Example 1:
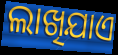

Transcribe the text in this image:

ଲାଖିଯାଏ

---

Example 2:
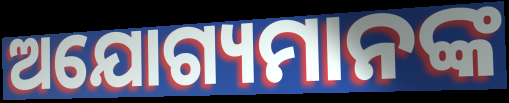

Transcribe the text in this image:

ଅଯୋଗ୍ୟମାନଙ୍କ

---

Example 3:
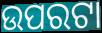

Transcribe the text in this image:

ଉପରଟା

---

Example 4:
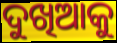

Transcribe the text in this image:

ଦୁଖିଆକୁ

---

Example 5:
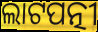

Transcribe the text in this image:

ଲାଟପତ୍ନୀ